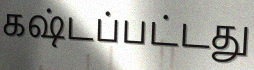
கஷ்டப்பட்டது